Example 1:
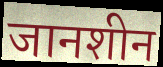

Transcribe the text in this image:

जानशीन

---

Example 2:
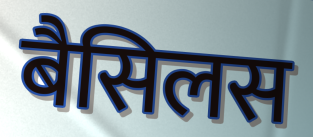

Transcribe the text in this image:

बैसिलस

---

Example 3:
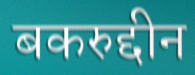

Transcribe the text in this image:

बकरुद्दीन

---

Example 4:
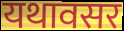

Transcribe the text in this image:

यथावसर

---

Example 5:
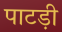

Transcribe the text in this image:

पाटड़ी